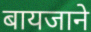
बायजाने